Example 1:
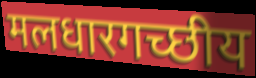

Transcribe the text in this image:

मलधारगच्छीय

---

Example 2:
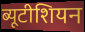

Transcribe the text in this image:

ब्यूटीशियन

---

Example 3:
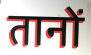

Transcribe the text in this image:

तानों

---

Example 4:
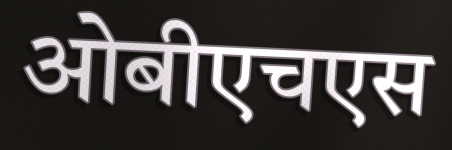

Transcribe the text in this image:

ओबीएचएस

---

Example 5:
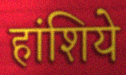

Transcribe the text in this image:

हांशिये